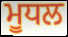
ਮੂਧਲ